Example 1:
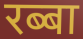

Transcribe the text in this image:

रब्बा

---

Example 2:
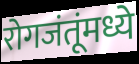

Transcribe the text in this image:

रोगजंतूंमध्ये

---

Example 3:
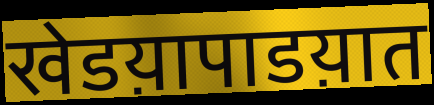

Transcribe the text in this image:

खेडय़ापाडय़ात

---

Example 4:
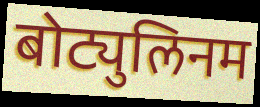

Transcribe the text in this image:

बोट्युलिनम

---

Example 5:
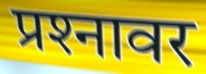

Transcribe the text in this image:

प्रश्‍नावर